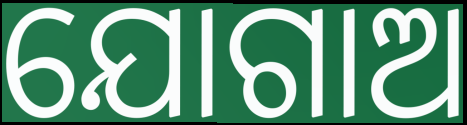
ଯୋଗାଅ